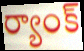
ర్యాంక్